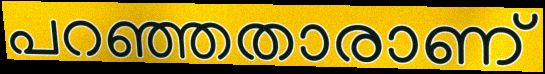
പറഞ്ഞതാരാണ്